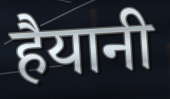
हैयानी